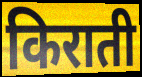
किराती